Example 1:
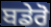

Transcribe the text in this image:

ਬਡੇਰੋ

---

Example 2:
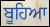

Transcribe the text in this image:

ਬੂਹਿਆ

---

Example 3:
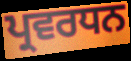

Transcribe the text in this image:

ਪ੍ਰਵਰਧਨ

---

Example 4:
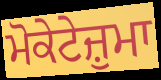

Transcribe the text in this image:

ਮੋਕੇਟੇਜ਼ੁਮਾ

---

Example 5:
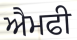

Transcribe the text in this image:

ਐਮਫੀ